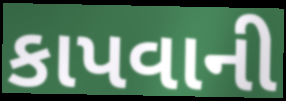
કાપવાની